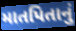
માતપિતાનું